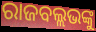
ରାଜବଲ୍ଲଭଙ୍କୁ